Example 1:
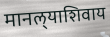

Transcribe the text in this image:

मानल्याशिवाय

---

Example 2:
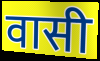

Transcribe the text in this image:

वासी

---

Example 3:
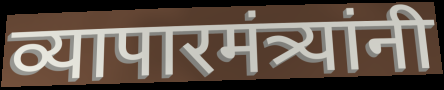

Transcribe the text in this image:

व्यापारमंत्र्यांनी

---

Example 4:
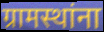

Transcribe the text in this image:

ग्रामस्थांना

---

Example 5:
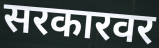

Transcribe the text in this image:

सरकारवर